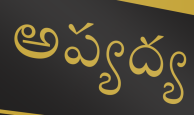
అప్యద్య